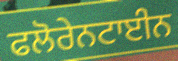
ਫਲੋਰੇਨਟਾਈਨ